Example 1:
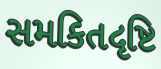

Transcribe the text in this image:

સમકિતદૃષ્ટિ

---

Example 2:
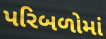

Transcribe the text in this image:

પરિબળોમાં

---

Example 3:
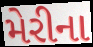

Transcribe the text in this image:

મેરીના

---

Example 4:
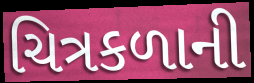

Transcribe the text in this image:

ચિત્રકળાની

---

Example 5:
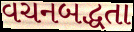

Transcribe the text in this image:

વચનબદ્ધતા